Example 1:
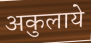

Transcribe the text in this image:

अकुलाये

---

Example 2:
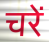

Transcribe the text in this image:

चरें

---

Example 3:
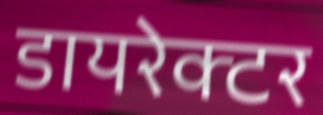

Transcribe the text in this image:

डायरेक्‍टर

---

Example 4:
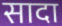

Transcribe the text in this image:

सादा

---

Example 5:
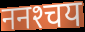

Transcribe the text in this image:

ननश्चय